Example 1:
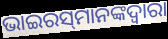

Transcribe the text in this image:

ଭାଇରସ୍‌ମାନଙ୍କଦ୍ୱାରା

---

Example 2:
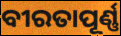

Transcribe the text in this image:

ବୀରତାପୂର୍ଣ୍ଣ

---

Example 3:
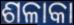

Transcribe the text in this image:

ଶଳାକା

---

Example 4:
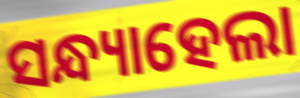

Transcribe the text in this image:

ସନ୍ଧ୍ୟାହେଲା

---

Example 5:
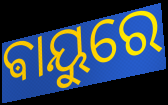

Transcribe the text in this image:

ଵାୟୁରେ